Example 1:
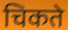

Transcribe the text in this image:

चिकते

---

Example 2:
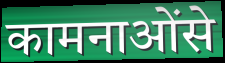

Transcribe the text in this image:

कामनाओंसे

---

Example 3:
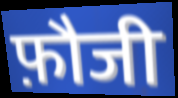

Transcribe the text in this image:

फ़ौजी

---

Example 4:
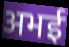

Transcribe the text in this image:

अभई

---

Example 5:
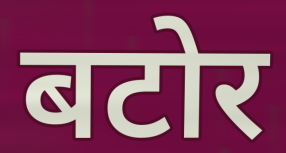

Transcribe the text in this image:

बटोर